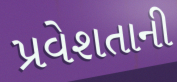
પ્રવેશતાની